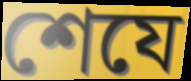
শেযে